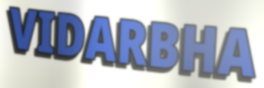
VIDARBHA